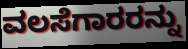
ವಲಸೆಗಾರರನ್ನು